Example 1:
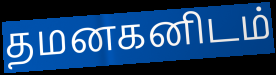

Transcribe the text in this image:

தமனகனிடம்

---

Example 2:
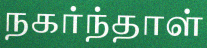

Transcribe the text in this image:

நகர்ந்தாள்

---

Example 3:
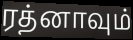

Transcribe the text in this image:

ரத்னாவும்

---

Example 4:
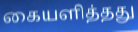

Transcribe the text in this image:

கையளித்தது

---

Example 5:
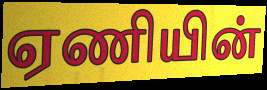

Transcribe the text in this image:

ஏணியின்